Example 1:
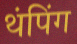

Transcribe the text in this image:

थंपिंग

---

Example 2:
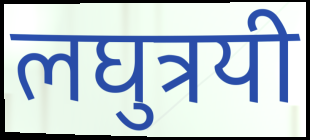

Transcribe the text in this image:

लघुत्रयी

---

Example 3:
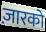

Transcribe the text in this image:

ज़ारको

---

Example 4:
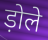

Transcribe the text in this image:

ड़ोले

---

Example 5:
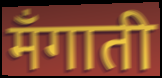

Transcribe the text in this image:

मँगाती